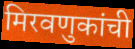
मिरवणुकांची